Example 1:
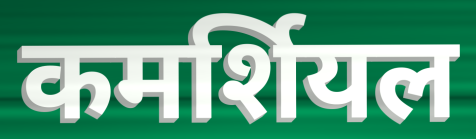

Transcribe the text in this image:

कमर्शियल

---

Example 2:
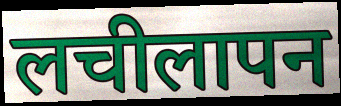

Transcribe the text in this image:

लचीलापन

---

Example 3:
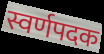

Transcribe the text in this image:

स्वर्णपदक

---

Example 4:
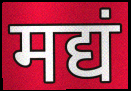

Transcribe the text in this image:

मद्यं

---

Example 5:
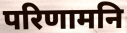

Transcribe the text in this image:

परिणामनि